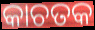
କାଚତକ